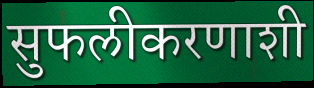
सुफलीकरणाशी